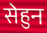
सेहुन